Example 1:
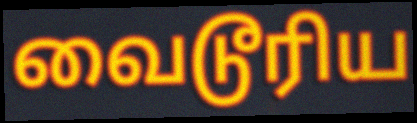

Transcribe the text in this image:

வைடூரிய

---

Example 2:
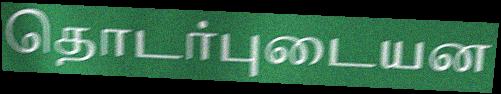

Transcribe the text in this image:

தொடர்புடையன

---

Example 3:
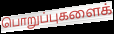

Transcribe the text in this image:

பொறுப்புகளைக்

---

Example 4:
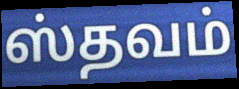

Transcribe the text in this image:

ஸ்தவம்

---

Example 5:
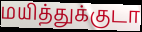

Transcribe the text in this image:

மயித்துக்குடா